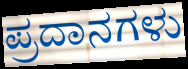
ಪ್ರದಾನಗಳು